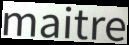
maitre